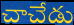
చాచేడు